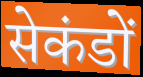
सेकंडों